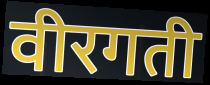
वीरगती